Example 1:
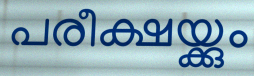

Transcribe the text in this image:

പരീക്ഷയ്ക്കും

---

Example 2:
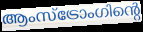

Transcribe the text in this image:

ആംസ്ട്രോംഗിന്റെ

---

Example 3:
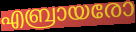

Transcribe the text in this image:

എബ്രായരോ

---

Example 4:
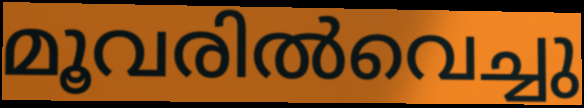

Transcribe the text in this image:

മൂവരിൽവെച്ചു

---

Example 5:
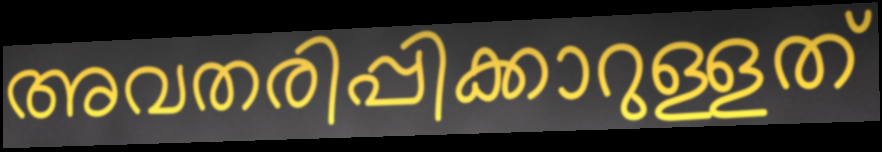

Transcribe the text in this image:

അവതരിപ്പിക്കാറുള്ളത്